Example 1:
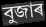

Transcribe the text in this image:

বুজাৰ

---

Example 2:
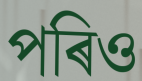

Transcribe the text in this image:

পৰিও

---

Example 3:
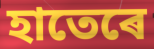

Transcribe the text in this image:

হাতেৰে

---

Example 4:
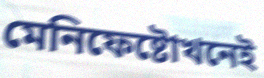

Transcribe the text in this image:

মেনিফেষ্টোখনেই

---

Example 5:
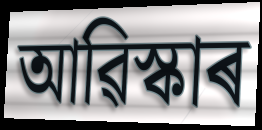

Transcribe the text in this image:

আৱিস্কাৰ